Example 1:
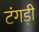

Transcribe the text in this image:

टंगड़ी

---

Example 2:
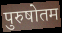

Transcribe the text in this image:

पुरुषोतम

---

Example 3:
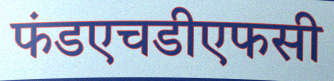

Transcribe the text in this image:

फंडएचडीएफसी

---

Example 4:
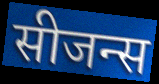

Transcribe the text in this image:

सीजन्स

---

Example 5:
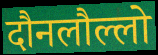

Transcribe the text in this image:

दौनलौल्लो